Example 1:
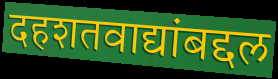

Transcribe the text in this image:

दहशतवाद्यांबद्दल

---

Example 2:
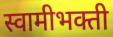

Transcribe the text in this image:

स्वामीभक्ती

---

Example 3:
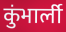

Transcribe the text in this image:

कुंभार्ली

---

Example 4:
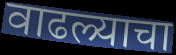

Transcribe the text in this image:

वाढल्याचा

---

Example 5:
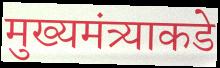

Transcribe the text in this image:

मुख्यमंत्र्याकडे